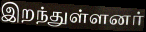
இறந்துள்ளனர்